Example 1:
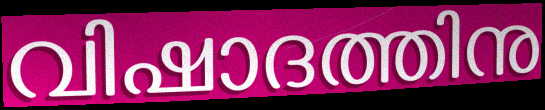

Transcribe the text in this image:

വിഷാദത്തിനു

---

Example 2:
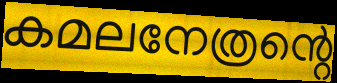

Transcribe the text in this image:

കമലനേത്രന്റെ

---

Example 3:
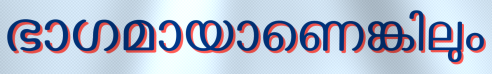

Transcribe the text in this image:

ഭാഗമായാണെങ്കിലും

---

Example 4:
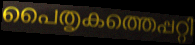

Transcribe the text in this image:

പൈതൃകത്തെപ്പറ്റി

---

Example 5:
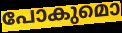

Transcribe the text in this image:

പോകുമൊ